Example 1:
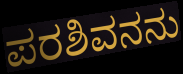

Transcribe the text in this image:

ಪರಶಿವನನು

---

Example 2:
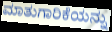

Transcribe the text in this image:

ಮಾತುಗಾರಿಕೆಯನ್ನು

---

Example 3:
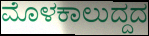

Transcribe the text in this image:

ಮೊಳಕಾಲುದ್ದದ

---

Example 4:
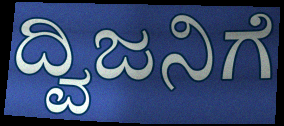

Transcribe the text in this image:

ದ್ವಿಜನಿಗೆ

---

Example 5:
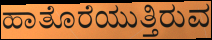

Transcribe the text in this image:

ಹಾತೊರೆಯುತ್ತಿರುವ